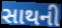
સાથની